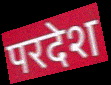
परदेश